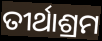
ତୀର୍ଥାଶ୍ରମ